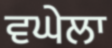
ਵਘੇਲਾ